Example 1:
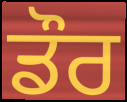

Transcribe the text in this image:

ਡੌਰ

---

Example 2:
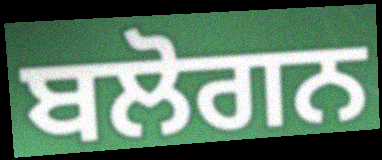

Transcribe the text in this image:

ਬਲੋਗਨ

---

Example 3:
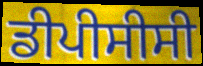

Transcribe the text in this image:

ਡੀਪੀਸੀਸੀ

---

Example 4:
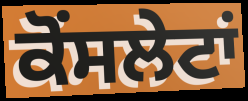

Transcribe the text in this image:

ਕੋਂਸਲੇਟਾਂ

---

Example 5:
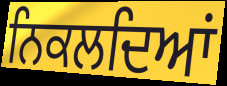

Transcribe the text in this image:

ਨਿਕਲਦਿਆਂ